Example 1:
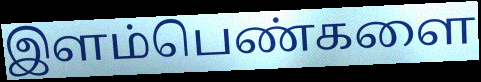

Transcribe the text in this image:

இளம்பெண்களை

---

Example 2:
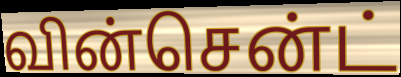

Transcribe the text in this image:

வின்சென்ட்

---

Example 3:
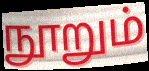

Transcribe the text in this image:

நூறும்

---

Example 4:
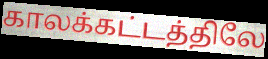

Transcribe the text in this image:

காலக்கட்டத்திலே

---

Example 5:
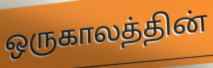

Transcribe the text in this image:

ஒருகாலத்தின்